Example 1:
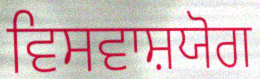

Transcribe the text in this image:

ਵਿਸਵਾਸ਼ਯੋਗ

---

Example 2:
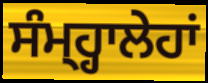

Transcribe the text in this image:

ਸੰਮ੍ਹ੍ਹਾਲੇਹਾਂ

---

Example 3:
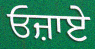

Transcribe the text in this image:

ਓਜ਼ਾਏ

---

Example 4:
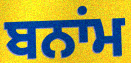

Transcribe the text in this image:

ਬਨਾਂਮ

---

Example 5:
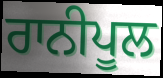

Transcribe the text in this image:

ਰਾਨੀਪੂਲ